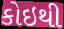
કોઇથી